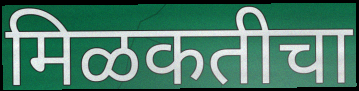
मिळकतीचा